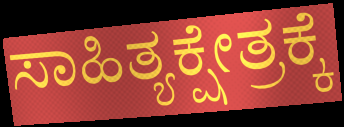
ಸಾಹಿತ್ಯಕ್ಷೇತ್ರಕ್ಕೆ